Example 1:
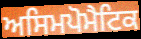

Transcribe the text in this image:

ਅਸਿਮਪੋਮੈਟਿਕ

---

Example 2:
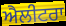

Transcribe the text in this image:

ਐਲੀਟਰਾ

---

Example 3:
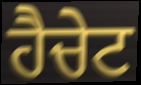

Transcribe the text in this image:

ਹੈਚੇਟ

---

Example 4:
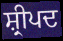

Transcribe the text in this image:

ਸ਼੍ਰੀਪਦ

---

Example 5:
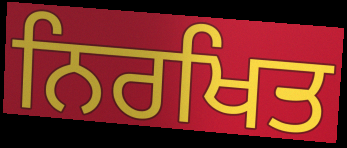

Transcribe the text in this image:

ਨਿਰਖਿਤ